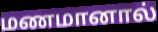
மணமானால்